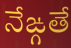
నేఙ్గతే